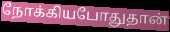
நோக்கியபோதுதான்